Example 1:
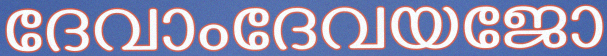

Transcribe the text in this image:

ദേവാംദേവയജോ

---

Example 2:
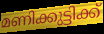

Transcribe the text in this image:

മണിക്കുട്ടിക്ക്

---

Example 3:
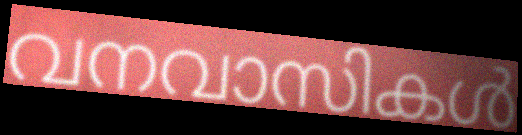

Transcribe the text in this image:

വനവാസികൾ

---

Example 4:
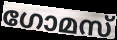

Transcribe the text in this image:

ഗോമസ്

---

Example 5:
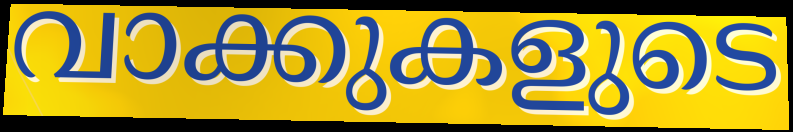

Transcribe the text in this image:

വാക്കുകളുടെ